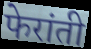
फेरांती